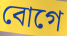
বোগে